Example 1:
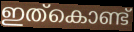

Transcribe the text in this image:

ഇത്കൊണ്ട്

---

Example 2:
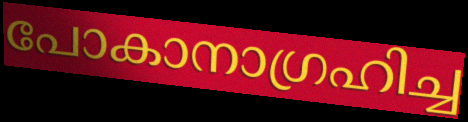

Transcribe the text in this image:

പോകാനാഗ്രഹിച്ച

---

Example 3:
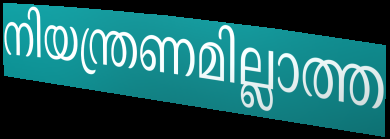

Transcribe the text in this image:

നിയന്ത്രണമില്ലാത്ത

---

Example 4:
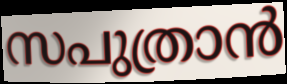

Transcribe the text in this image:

സപുത്രാൻ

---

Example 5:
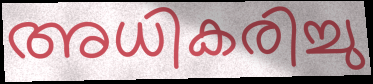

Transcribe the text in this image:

അധികരിച്ചു